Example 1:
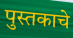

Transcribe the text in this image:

पुस्तकाचे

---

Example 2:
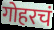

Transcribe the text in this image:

गोहरचं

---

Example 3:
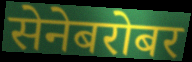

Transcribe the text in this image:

सेनेबरोबर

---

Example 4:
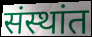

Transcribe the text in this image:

संस्थांत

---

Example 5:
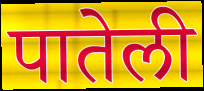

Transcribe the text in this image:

पातेली